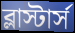
ব্লাস্টার্স